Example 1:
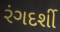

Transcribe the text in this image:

રંગદર્શી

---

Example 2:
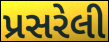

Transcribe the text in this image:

પ્રસરેલી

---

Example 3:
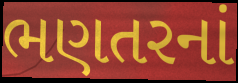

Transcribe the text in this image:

ભણતરનાં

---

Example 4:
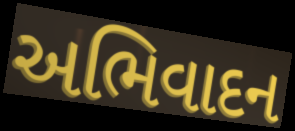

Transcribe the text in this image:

અભિવાદન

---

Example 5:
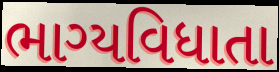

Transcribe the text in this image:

ભાગ્યવિધાતા